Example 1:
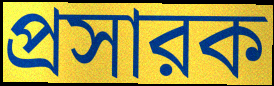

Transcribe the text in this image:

প্রসারক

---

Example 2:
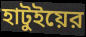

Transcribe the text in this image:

হাটুইয়ের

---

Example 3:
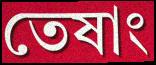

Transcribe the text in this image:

তেষাং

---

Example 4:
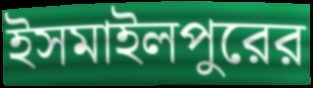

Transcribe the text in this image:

ইসমাইলপুরের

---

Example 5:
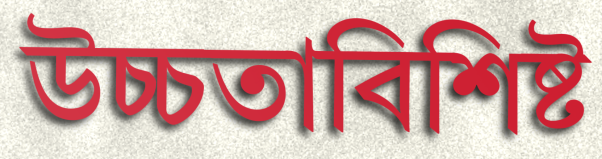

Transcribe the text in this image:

উচ্চতাবিশিষ্ট